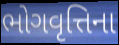
ભોગવૃત્તિના